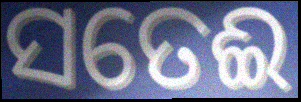
ସତେଈ